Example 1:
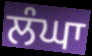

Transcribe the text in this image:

ਲੰਘਾ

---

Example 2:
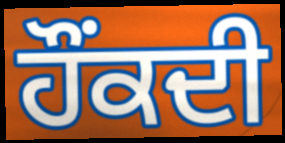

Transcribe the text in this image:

ਹੌਂਕਦੀ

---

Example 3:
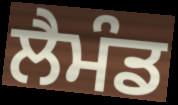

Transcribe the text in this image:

ਲੈਮੰਡ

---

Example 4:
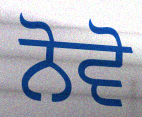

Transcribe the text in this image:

ਨੋਵੋ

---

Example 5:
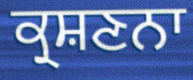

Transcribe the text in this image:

ਕ੍ਰਸ਼ਣਨਾ